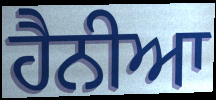
ਹੈਨੀਆ